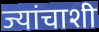
ज्यांचाशी